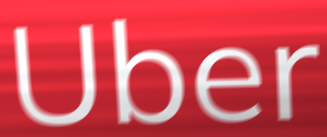
Uber